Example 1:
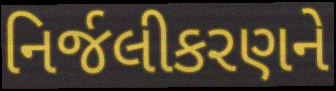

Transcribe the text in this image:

નિર્જલીકરણને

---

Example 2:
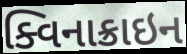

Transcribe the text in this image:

ક્વિનાક્રાઇન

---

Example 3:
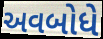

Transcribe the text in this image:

અવબોધે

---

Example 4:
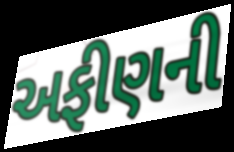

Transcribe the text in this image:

અફીણની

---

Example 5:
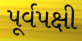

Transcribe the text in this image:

પૂર્વપક્ષી